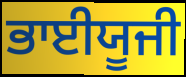
ਭਾਈਯੂਜੀ